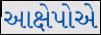
આક્ષેપોએ